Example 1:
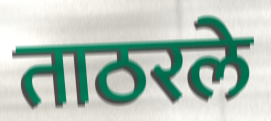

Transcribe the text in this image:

ताठरले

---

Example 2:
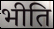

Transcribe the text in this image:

भीति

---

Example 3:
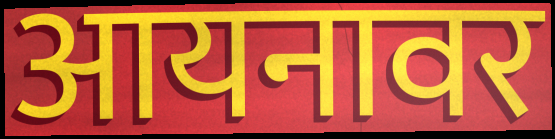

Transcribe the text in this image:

आयनावर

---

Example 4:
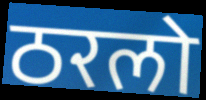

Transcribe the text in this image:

ठरलो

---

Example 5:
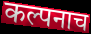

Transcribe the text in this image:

कल्पनाच